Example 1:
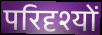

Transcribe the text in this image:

परिदृश्यों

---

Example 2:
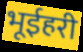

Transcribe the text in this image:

भूईहरी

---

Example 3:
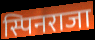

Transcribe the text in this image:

स्पिनराजा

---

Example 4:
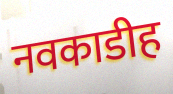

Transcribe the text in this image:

नवकाडीह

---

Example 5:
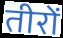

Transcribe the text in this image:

तीरों